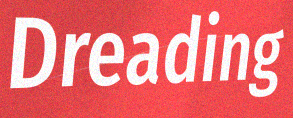
Dreading